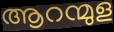
ആറന്മുള